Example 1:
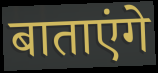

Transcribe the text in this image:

बाताएंगे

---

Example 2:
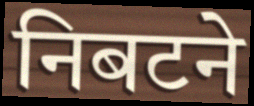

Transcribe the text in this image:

निबटने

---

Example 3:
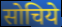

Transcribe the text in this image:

सोचिये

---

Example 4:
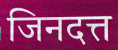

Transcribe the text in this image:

जिनदत्त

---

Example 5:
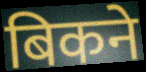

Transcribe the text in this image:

बिकने